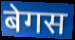
बेगस